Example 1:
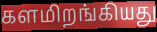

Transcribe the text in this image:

களமிறங்கியது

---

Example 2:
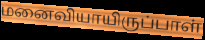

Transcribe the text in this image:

மனைவியாயிருப்பாள்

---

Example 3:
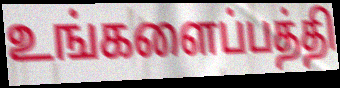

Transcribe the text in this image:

உங்களைப்பத்தி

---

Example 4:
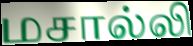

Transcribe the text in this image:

மசால்லி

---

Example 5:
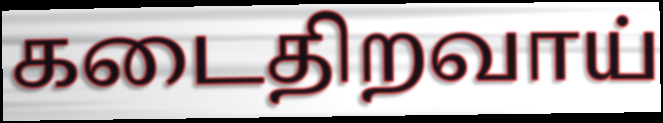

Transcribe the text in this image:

கடைதிறவாய்